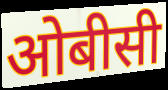
ओबीसी